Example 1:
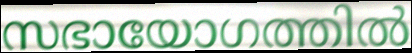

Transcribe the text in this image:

സഭായോഗത്തിൽ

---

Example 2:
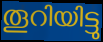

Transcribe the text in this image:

തൂറിയിട്ടു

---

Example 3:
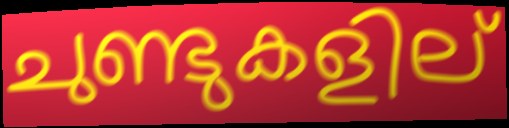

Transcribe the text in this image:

ചുണ്ടുകളില്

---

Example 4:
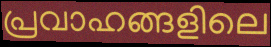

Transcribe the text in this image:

പ്രവാഹങ്ങളിലെ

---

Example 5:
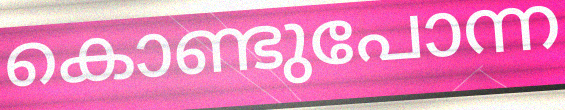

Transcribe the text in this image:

കൊണ്ടുപോന്ന